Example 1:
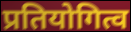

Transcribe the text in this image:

प्रतियोगित्व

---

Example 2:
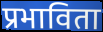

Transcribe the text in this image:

प्रभाविता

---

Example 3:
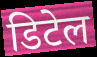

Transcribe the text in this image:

डिटेल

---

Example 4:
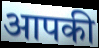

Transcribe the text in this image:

आपकी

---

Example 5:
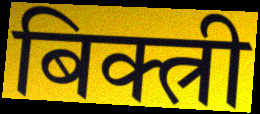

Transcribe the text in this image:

बिक्त्री